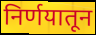
निर्णयातून